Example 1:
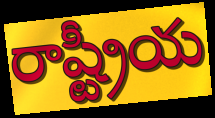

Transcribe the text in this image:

రాష్ట్రీయ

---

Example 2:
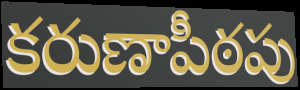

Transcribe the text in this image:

కరుణాపీఠపు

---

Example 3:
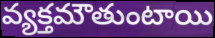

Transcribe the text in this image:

వ్యక్తమౌతుంటాయి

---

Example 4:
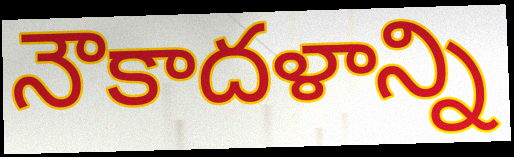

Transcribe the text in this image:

నౌకాదళాన్ని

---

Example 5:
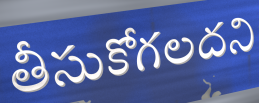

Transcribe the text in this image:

తీసుకోగలదని